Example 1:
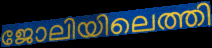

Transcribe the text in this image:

ജോലിയിലെത്തി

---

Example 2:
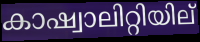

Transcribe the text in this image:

കാഷ്വാലിറ്റിയില്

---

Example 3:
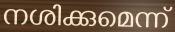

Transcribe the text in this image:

നശിക്കുമെന്ന്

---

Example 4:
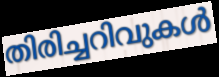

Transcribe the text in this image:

തിരിച്ചറിവുകൾ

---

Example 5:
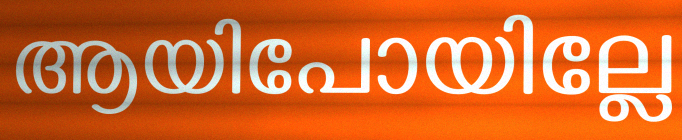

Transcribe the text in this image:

ആയിപോയില്ലേ